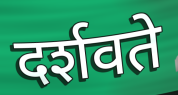
दर्शवते